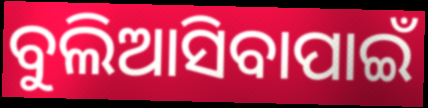
ବୁଲିଆସିବାପାଇଁ